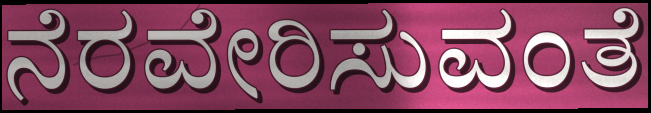
ನೆರವೇರಿಸುವಂತೆ